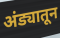
अंड्यातून